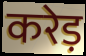
करेड़